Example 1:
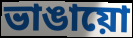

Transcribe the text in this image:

ভাঙায়ো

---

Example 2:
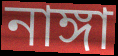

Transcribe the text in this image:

নাঙ্গা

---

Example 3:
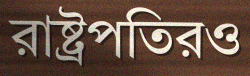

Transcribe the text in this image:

রাষ্ট্রপতিরও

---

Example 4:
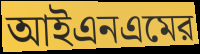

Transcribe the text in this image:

আইএনএমের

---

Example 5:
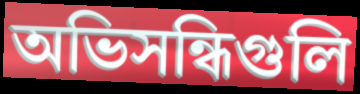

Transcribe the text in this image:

অভিসন্ধিগুলি